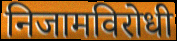
निजामविरोधी